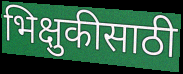
भिक्षुकीसाठी